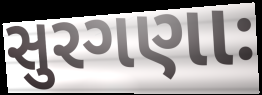
સુરગણાઃ